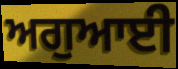
ਅਗੁਆਈ